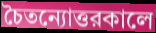
চৈতন্যোত্তরকালে